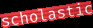
scholastic